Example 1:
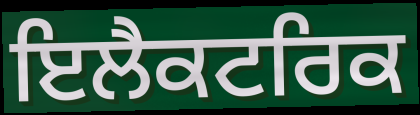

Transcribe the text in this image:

ਇਲੈਕਟਰਿਕ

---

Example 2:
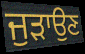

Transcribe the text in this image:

ਜੁੜਾਉਣ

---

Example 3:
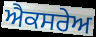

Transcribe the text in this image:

ਐਕਸਰੇਅ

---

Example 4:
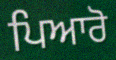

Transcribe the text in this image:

ਪਿਆਰੋ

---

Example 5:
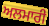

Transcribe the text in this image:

ਅਲਮਾਰੀ